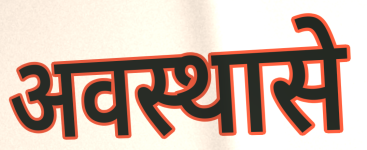
अवस्थासे